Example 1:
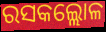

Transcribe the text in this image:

ରସକଲ୍ଲୋଳ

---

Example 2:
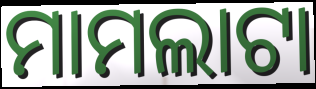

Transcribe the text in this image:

ମାମଲାଟା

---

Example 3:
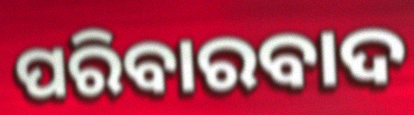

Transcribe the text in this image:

ପରିବାରବାଦ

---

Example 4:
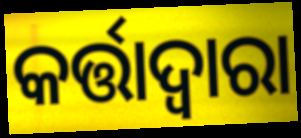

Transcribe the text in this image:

କର୍ତ୍ତାଦ୍ଵାରା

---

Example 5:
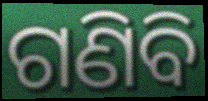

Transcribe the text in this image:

ଗଣିବି